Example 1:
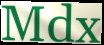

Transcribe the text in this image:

Mdx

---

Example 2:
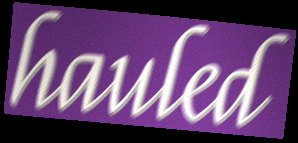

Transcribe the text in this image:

hauled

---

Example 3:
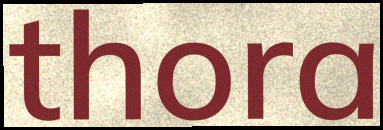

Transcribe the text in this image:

thora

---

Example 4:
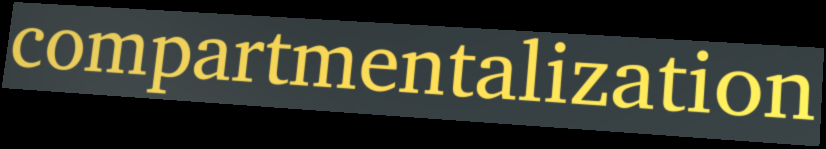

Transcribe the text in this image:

compartmentalization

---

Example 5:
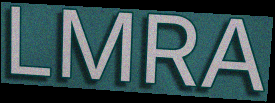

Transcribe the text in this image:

LMRA